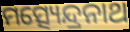
ମତ୍ସ୍ୟେନ୍ଦ୍ରନାଥ